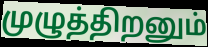
முழுத்திறனும்